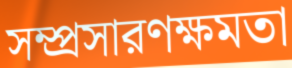
সম্প্রসারণক্ষমতা